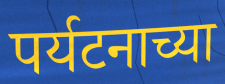
पर्यटनाच्या